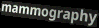
mammography